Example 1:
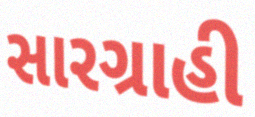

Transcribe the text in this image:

સારગ્રાહી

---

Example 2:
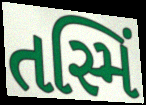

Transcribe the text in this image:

તસ્મિં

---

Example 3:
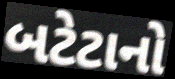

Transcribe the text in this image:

બટેટાનો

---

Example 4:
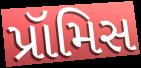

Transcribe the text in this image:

પ્રૉમિસ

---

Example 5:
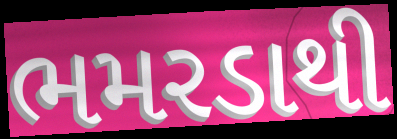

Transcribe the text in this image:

ભમરડાથી